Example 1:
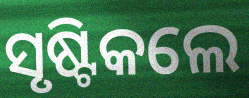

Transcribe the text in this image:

ସୃଷ୍ଟିକଲେ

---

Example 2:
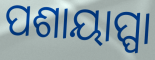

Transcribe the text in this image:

ପଶାୟାପ୍ପା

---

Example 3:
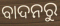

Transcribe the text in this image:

ବାଦନରୁ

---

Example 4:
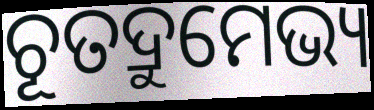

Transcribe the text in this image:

ଚୂତଦ୍ରୁମେଭ୍ୟ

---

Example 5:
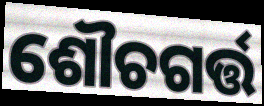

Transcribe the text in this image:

ଶୌଚଗର୍ତ୍ତ